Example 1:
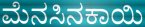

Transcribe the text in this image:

ಮೆನಸಿನಕಾಯಿ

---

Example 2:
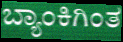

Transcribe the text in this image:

ಬ್ಯಾಂಕಿಗಿಂತ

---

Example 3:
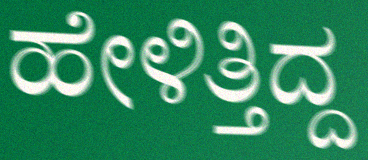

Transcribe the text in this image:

ಹೇಳಿತ್ತಿದ್ದ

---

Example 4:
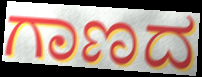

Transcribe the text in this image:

ಗಾಣದ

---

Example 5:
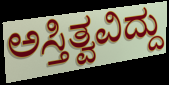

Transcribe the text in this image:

ಅಸ್ತಿತ್ವವಿದ್ದು